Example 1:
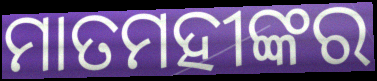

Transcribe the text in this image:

ମାତମହୀଙ୍କର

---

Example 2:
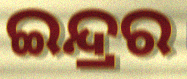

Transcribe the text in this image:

ଇନ୍ଦ୍ରର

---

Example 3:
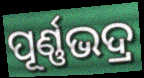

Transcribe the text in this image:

ପୂର୍ଣ୍ଣଭଦ୍ର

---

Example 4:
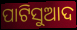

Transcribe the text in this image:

ପାଟିସୁଆଦ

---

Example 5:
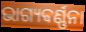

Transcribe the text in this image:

ଭାଗ୍ୟଵର୍ଣ୍ଣନା